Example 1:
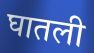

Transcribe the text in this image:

घातली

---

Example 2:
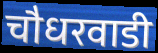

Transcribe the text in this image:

चौधरवाडी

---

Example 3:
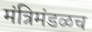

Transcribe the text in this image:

मंत्रिमंडळच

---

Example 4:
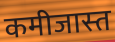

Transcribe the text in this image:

कमीजास्त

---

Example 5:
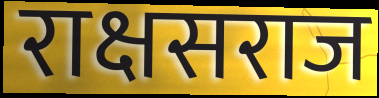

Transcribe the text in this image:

राक्षसराज